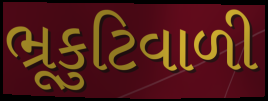
ભ્રૂકુટિવાળી